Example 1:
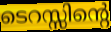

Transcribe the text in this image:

ടെറസ്സിന്റെ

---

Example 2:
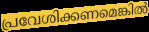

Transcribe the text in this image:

പ്രവേശിക്കണമെങ്കിൽ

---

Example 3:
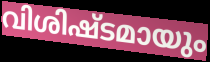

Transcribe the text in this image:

വിശിഷ്ടമായും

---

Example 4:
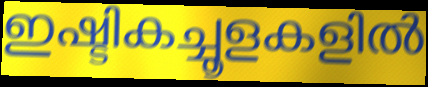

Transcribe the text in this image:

ഇഷ്ടികച്ചൂളകളിൽ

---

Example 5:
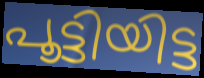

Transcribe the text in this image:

പൂട്ടിയിട്ട